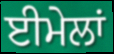
ਈਮੇਲਾਂ